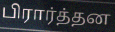
பிரார்த்தன